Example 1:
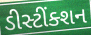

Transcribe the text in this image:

ડીસ્ટીંક્શન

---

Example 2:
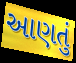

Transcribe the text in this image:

આણતું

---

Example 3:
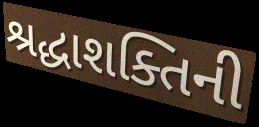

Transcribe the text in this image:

શ્રદ્ધાશક્તિની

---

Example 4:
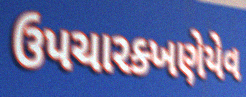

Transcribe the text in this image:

ઉપચારક્ખણેયેવ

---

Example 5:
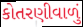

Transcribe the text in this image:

કોતરણીવાળું